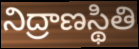
నిద్రాణస్థితి